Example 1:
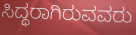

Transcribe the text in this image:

ಸಿದ್ಧರಾಗಿರುವವರು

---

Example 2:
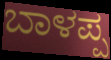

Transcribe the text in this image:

ಬಾಳಪ್ಪ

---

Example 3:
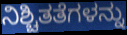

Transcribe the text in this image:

ನಿಶ್ಚಿತತೆಗಳನ್ನು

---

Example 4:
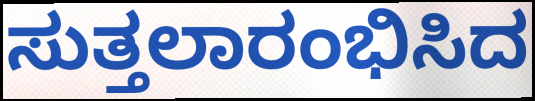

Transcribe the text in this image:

ಸುತ್ತಲಾರಂಭಿಸಿದ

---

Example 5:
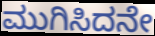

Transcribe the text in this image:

ಮುಗಿಸಿದನೇ